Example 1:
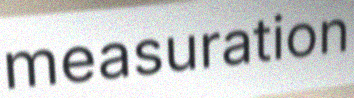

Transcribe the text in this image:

measuration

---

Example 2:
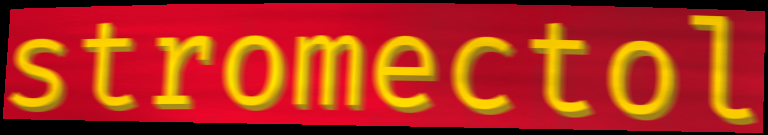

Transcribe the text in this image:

stromectol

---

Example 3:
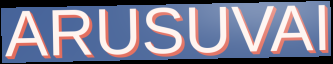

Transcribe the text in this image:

ARUSUVAI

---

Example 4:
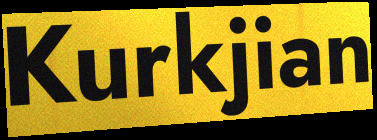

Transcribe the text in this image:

Kurkjian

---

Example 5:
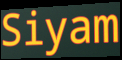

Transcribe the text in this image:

Siyam